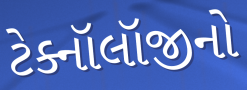
ટેક્નૉલૉજીનો